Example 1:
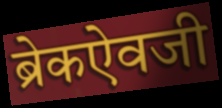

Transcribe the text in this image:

ब्रेकऐवजी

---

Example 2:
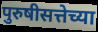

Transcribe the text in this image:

पुरुषीसत्तेच्या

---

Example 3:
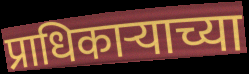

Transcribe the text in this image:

प्राधिकाऱ्याच्या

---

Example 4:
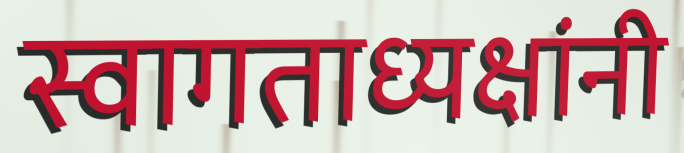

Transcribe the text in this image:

स्वागताध्यक्षांनी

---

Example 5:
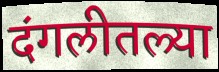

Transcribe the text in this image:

दंगलीतल्या